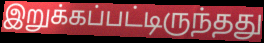
இறுக்கப்பட்டிருந்தது